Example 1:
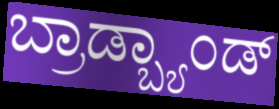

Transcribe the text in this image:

ಬ್ರಾಡ್ಬ್ಯಾಂಡ್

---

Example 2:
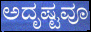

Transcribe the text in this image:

ಅದೃಷ್ಟವೂ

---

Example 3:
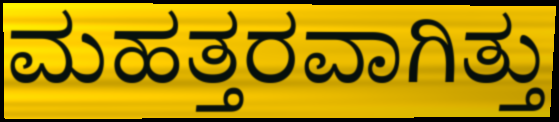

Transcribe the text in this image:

ಮಹತ್ತರವಾಗಿತ್ತು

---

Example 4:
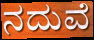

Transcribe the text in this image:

ನದುವೆ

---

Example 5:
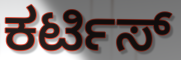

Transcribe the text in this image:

ಕರ್ಟಿಸ್